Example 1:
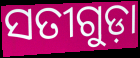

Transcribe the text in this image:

ସତୀଗୁଡ଼ା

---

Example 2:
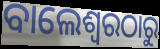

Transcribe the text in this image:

ବାଲେଶ୍ବରଠାରୁ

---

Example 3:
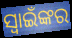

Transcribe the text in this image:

ସ୍ଵାଇଁଙ୍କର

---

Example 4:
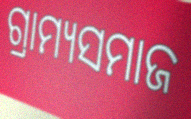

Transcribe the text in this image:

ଗ୍ରାମ୍ୟସମାଜ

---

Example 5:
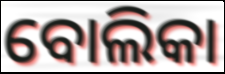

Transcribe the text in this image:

ବୋଲିକା